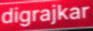
digrajkar